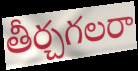
తీర్చగలరా